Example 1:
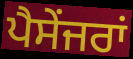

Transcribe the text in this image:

ਪੈਸੇਂਜਰਾਂ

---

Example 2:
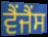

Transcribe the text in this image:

ਵੈਂਜੈਂਸ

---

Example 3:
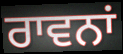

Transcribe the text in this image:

ਰਾਵਨਾਂ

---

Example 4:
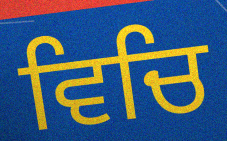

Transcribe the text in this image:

ਵਿਚਿ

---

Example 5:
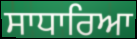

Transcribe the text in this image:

ਸਾਧਾਰਿਆ